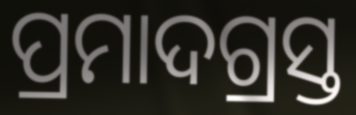
ପ୍ରମାଦଗ୍ରସ୍ତ